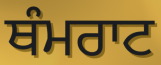
ਥੰਮਰਾਟ